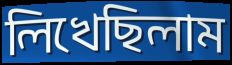
লিখেছিলাম